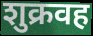
शुक्रवह